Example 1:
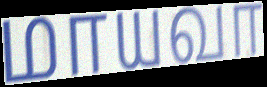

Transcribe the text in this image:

மாயவா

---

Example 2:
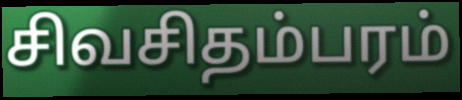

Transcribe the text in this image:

சிவசிதம்பரம்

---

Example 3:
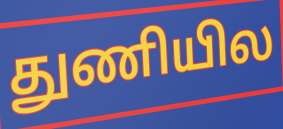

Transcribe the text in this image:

துணியில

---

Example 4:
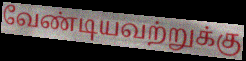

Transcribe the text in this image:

வேண்டியவற்றுக்கு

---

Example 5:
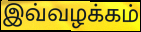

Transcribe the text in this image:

இவ்வழக்கம்